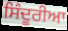
ਸਿੰਦੂਰੀਆ